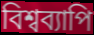
বিশ্বব্যাপি